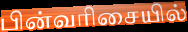
பின்வரிசையில்